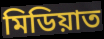
মিডিয়াত